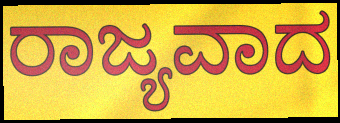
ರಾಜ್ಯವಾದ